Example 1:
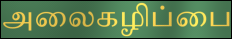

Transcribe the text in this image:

அலைகழிப்பை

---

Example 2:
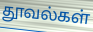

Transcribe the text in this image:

தூவல்கள்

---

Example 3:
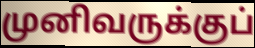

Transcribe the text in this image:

முனிவருக்குப்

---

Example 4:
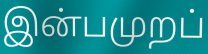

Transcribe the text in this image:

இன்பமுறப்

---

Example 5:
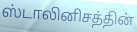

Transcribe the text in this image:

ஸ்டாலினிசத்தின்